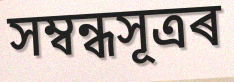
সম্বন্ধসূত্ৰৰ